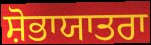
ਸ਼ੋਭਾਯਾਤਰਾ